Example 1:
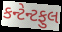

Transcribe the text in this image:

કન્ટેન્ટફુલ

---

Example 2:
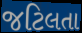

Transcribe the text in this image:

જટિલતા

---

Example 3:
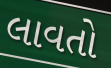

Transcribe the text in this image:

લાવતો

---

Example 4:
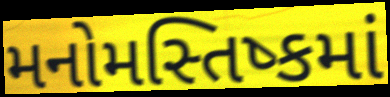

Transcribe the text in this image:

મનોમસ્તિષ્કમાં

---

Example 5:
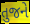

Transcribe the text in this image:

તુજને